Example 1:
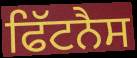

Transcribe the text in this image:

ਫਿੱਟਨੈਸ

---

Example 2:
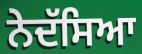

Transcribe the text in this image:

ਨੇਦੱਸਿਆ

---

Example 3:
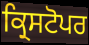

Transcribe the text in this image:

ਕ੍ਰਿਸਟੋਪਰ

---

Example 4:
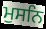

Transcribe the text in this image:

ਮੁਸਨਿ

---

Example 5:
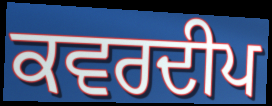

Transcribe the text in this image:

ਕਵਰਦੀਪ